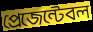
প্রেজেন্টেবল